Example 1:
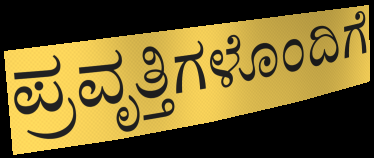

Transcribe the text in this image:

ಪ್ರವೃತ್ತಿಗಳೊಂದಿಗೆ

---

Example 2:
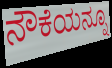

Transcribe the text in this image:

ನೌಕೆಯನ್ನೂ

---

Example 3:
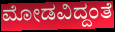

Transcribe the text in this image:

ಮೋಡವಿದ್ದಂತೆ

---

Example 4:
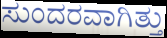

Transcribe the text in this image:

ಸುಂದರವಾಗಿತ್ತು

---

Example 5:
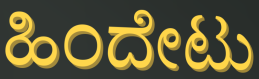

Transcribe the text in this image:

ಹಿಂದೇಟು